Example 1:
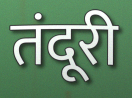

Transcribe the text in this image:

तंदूरी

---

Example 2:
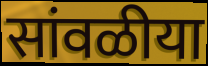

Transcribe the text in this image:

सांवळीया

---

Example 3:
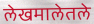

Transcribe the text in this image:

लेखमालेतले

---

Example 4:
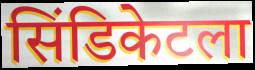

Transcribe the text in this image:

सिंडिकेटला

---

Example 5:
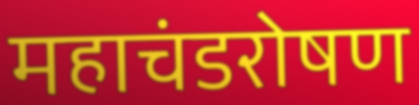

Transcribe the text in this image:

महाचंडरोषण